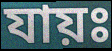
যায়ঃ